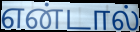
என்டால்